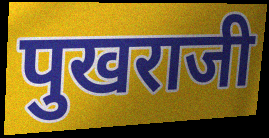
पुखराजी